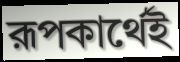
রূপকার্থেই